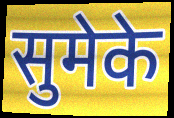
सुमेके